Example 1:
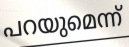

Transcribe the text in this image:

പറയുമെന്ന്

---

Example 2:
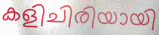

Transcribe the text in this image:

കളിചിരിയായി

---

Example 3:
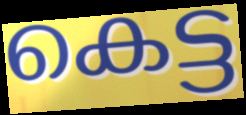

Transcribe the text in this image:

കെട്ട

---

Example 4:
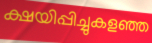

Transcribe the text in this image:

ക്ഷയിപ്പിച്ചുകളഞ്ഞ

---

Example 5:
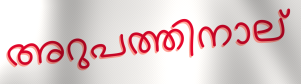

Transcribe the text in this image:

അറുപത്തിനാല്